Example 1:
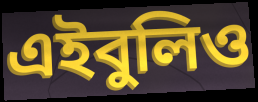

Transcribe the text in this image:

এইবুলিও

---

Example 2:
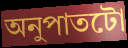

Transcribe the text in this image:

অনুপাতটো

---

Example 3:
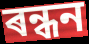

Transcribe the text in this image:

ৰন্ধন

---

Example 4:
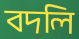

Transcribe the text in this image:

বদলি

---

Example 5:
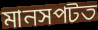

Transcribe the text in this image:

মানসপটত